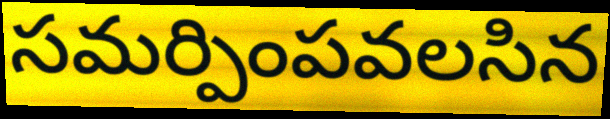
సమర్పింపవలసిన